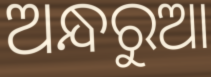
ଅନ୍ଧରୁଆ